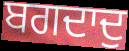
ਬਗਦਾਦੁ